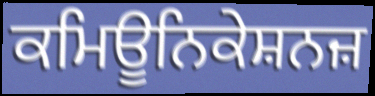
ਕਮਿਊਨਿਕੇਸ਼ਨਜ਼